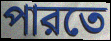
পারতে